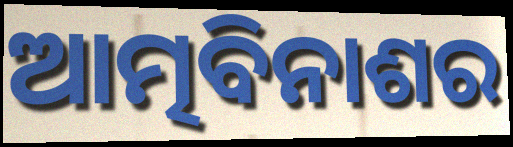
ଆତ୍ମବିନାଶର